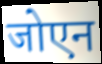
जोएन